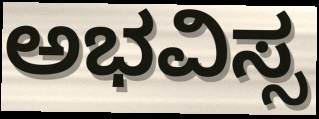
ಅಭವಿಸ್ಸ